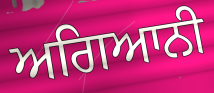
ਅਗਿਆਨੀ